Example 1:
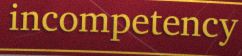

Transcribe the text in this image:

incompetency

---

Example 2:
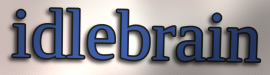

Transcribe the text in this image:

idlebrain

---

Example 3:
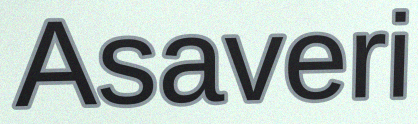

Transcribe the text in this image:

Asaveri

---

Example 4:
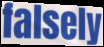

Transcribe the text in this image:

falsely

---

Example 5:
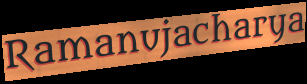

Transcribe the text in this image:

Ramanujacharya